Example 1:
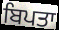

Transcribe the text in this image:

ਬਿਪਤਾ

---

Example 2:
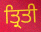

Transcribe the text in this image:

ਤ੍ਰਿਤੀ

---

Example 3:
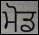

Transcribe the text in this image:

ਮੋਡ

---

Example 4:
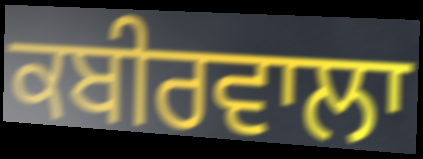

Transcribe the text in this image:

ਕਬੀਰਵਾਲਾ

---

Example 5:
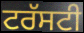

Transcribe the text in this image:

ਟਰੱਸਟੀ